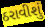
ઠરાવીશું